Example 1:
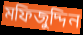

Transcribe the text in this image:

মফিজুদ্দিন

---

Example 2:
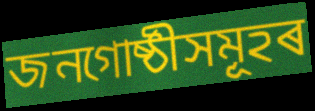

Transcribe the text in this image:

জনগোষ্ঠীসমূহৰ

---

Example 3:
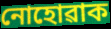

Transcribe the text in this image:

নোহোৱাক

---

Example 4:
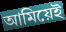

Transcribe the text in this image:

আমিয়েই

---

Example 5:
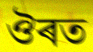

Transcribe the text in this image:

ঔৰত